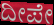
ದೀಪೇ